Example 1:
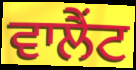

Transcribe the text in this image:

ਵਾਲੈਂਟ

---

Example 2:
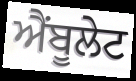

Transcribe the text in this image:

ਐਂਬੂਲੇਟ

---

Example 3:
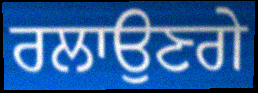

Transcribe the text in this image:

ਰਲਾਉਣਗੇ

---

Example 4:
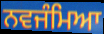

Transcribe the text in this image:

ਨਵਜੰਮਿਆ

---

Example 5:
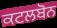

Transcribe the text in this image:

ਕਟਲਬੋਨ